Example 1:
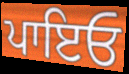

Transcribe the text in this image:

ਪਾਇਓ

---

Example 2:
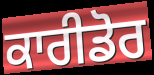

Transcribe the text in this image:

ਕਾਰੀਡੋਰ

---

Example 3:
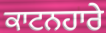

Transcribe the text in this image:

ਕਾਟਨਹਾਰੇ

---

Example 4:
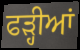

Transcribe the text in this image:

ਫੜ੍ਹੀਆਂ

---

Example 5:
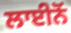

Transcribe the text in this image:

ਲਾਈਨੋਂ